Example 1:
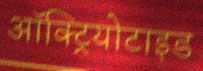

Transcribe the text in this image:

ऑक्ट्रियोटाइड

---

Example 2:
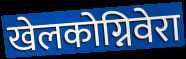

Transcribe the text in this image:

खेलकोग्निवेरा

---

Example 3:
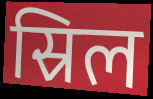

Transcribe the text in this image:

स्रिल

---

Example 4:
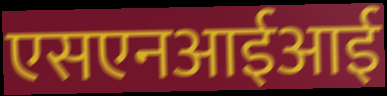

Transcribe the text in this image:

एसएनआईआई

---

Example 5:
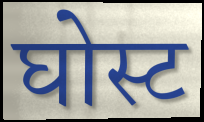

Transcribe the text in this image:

घोस्ट